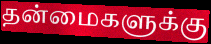
தன்மைகளுக்கு